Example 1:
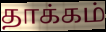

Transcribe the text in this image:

தாக்கம்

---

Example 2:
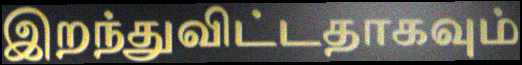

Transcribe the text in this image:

இறந்துவிட்டதாகவும்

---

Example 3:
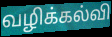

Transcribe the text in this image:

வழிக்கல்வி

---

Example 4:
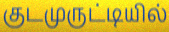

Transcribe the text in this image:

குடமுருட்டியில்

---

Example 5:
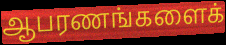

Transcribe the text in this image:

ஆபரணங்களைக்